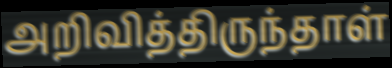
அறிவித்திருந்தாள்